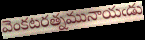
వెంకటరత్నమునాయఁడు